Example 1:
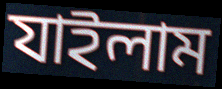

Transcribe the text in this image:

যাইলাম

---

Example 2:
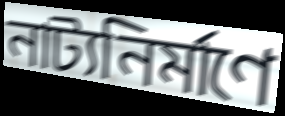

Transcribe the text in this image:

নাট্যনির্মাণে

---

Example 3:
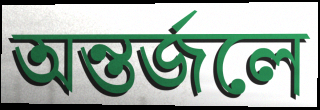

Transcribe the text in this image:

অন্তর্জলে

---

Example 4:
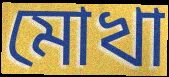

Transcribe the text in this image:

মোখা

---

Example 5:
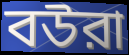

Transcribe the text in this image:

বউরা